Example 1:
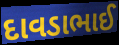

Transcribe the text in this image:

દાવડાભાઈ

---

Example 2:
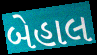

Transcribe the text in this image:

બેહાલ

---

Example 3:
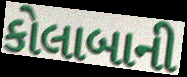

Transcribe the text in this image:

કોલાબાની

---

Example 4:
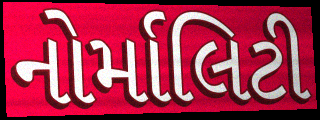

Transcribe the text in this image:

નોર્માલિટી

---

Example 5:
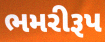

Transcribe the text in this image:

ભમરીરૂપ